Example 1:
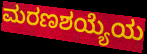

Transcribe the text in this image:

ಮರಣಶಯ್ಯೆಯ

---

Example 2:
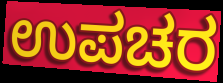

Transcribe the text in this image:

ಉಪಚರ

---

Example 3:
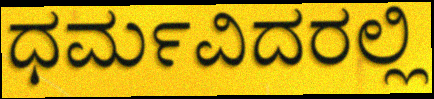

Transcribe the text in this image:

ಧರ್ಮವಿದರಲ್ಲಿ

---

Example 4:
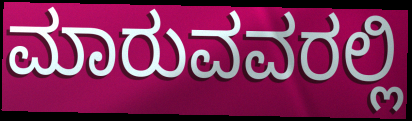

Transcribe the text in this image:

ಮಾರುವವರಲ್ಲಿ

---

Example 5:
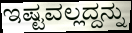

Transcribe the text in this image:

ಇಷ್ಟವಲ್ಲದ್ದನ್ನು